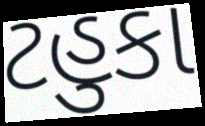
ટહુકા